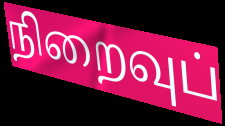
நிறைவுப்